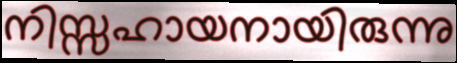
നിസ്സഹായനായിരുന്നു